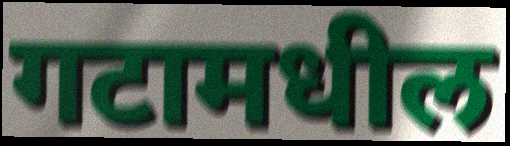
गटामधील